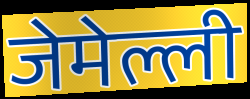
जेमेल्ली